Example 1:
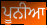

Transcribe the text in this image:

ਪੂਨੀਆ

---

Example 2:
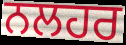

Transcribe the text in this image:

ਨਲਹਰ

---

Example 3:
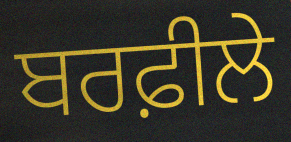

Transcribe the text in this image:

ਬਰਫ਼ੀਲੇ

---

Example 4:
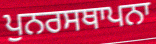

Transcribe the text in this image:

ਪੁਨਰਸਥਾਪਨਾ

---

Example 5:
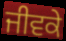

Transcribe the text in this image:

ਜੀਵਕੇ